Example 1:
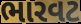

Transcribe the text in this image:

ભારવટ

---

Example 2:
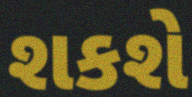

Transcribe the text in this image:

શકશે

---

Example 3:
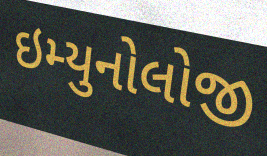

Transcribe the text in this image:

ઇમ્યુનોલોજી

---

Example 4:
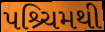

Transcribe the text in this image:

પશ્ર્ચિમથી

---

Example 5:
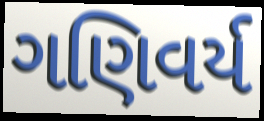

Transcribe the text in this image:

ગણિવર્ય